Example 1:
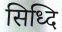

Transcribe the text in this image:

सिध्दि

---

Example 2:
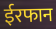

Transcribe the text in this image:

ईरफान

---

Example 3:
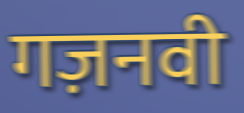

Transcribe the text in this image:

गज़नवी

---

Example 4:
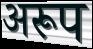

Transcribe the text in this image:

अरूप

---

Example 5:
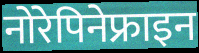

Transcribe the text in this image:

नोरेपिनेफ्राइन